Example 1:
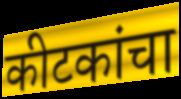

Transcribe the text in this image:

कीटकांचा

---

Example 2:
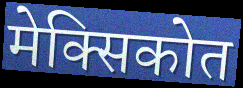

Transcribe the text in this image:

मेक्सिकोत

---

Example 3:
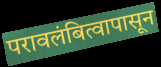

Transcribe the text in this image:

परावलंबित्वापासून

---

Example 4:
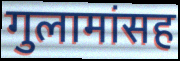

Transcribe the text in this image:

गुलामांसह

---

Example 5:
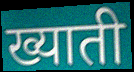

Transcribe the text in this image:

ख्याती